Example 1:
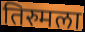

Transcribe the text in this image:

तिरुमला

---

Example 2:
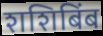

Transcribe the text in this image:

शशिबिंब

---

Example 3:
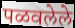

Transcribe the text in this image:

पळवलेले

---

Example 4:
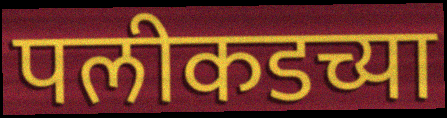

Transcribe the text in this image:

पलीकडच्या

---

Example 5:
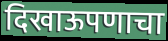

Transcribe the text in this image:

दिखाऊपणाचा